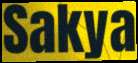
Sakya